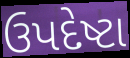
ઉપદેષ્ટા